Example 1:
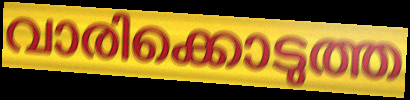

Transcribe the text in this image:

വാരിക്കൊടുത്ത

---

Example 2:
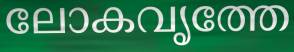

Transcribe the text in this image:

ലോകവൃത്തേ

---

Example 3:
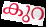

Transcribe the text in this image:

കുറ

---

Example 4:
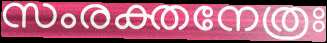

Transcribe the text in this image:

സംരക്തനേത്രഃ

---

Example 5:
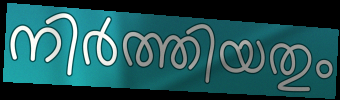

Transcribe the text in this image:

നിർത്തിയതും